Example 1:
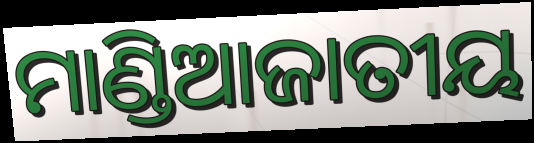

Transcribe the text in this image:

ମାଣ୍ଡିଆଜାତୀୟ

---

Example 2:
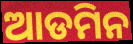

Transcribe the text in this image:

ଆଡମିନ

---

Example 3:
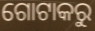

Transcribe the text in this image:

ଗୋଟାକରୁ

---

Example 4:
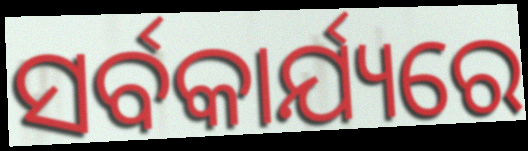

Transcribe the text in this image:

ସର୍ବକାର୍ଯ୍ୟରେ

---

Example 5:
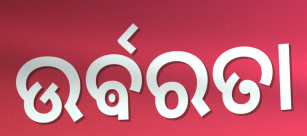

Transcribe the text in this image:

ଉର୍ଵରତା